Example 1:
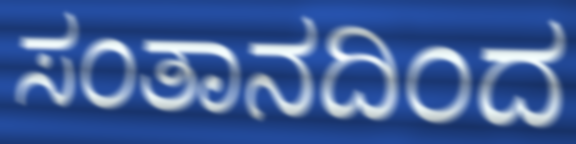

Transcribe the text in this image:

ಸಂತಾನದಿಂದ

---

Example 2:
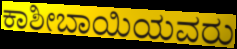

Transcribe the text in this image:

ಕಾಶೀಬಾಯಿಯವರು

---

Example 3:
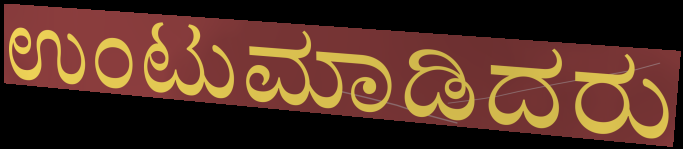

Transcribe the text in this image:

ಉಂಟುಮಾಡಿದರು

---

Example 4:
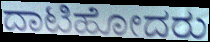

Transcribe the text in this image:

ದಾಟಿಹೋದರು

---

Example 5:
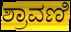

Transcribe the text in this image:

ಶ್ರಾವಣಿ